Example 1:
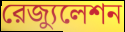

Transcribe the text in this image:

রেজ্যুলেশন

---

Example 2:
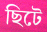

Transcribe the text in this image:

ছিটে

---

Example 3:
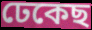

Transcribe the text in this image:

ঢেকেছ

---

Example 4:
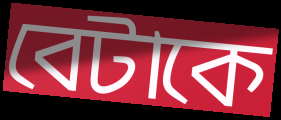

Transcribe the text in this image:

বেটাকে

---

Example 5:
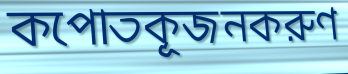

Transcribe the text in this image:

কপোতকূজনকরুণ